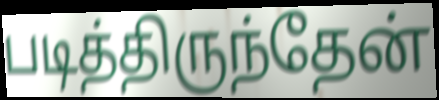
படித்திருந்தேன்